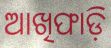
ଆଖିଫାଡ଼ି